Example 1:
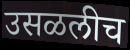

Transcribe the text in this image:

उसळलीच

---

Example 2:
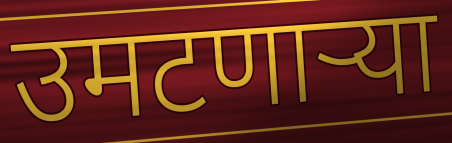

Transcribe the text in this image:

उमटणाऱ्या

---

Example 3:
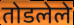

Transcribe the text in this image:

तोडलेले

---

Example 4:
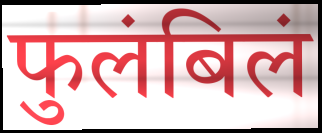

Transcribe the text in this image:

फुलंबिलं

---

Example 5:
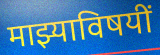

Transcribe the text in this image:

माझ्याविषयीं